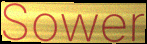
Sower